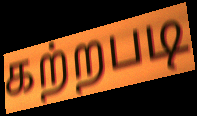
கற்றபடி